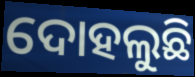
ଦୋହଲୁଛି